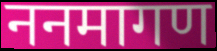
ननमागण